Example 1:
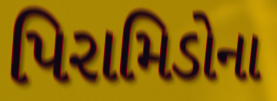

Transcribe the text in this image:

પિરામિડોના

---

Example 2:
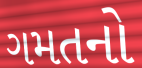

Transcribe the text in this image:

ગમતનો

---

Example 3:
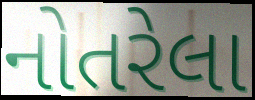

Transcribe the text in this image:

નોતરેલા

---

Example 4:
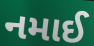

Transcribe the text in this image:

નમાઈ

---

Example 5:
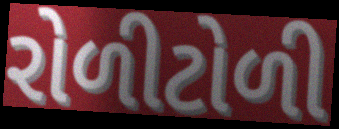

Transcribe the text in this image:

રોળીટોળી